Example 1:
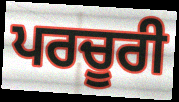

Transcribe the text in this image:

ਪਰਚੂਰੀ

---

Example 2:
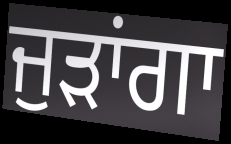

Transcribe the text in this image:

ਜੁੜਾਂਗਾ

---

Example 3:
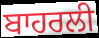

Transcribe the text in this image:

ਬਾਹਰਲੀ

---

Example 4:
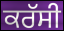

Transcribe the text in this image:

ਕਰੱਸੀ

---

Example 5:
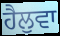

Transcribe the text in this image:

ਹੈਲੁਵਾ